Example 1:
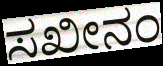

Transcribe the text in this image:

ಸಖೀನಂ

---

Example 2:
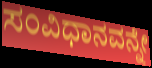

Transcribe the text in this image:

ಸಂವಿಧಾನವನ್ನೇ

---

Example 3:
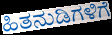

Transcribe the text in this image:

ಹಿತನುಡಿಗಳಿಗೆ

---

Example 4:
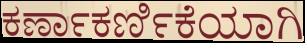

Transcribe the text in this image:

ಕರ್ಣಾಕರ್ಣಿಕೆಯಾಗಿ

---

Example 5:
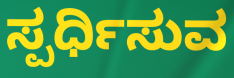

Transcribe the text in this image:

ಸ್ಪರ್ಧಿಸುವ